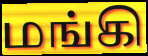
மங்கி